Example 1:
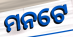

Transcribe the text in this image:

ମନଟେ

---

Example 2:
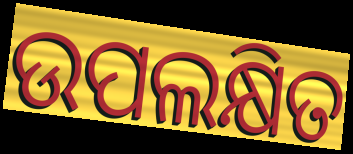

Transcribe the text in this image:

ଉପଲକ୍ଷିତ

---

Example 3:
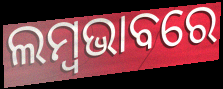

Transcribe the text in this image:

ଲମ୍ବଭାବରେ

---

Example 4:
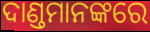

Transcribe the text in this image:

ଦାଣ୍ଡମାନଙ୍କରେ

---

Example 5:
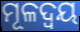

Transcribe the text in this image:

ମୂଳଦ୍ୱୟ